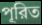
পূরিত